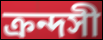
ক্রন্দসী